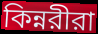
কিন্নরীরা